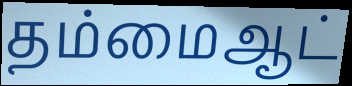
தம்மைஆட்